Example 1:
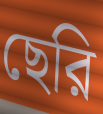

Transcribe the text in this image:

ছেরি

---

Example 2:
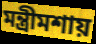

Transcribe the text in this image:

মন্ত্রীমশায়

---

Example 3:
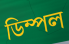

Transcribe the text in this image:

ডিম্পল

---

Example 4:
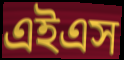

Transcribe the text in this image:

এইএস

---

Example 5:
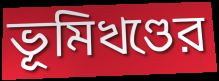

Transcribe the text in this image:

ভূমিখণ্ডের